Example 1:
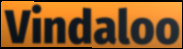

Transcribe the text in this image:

Vindaloo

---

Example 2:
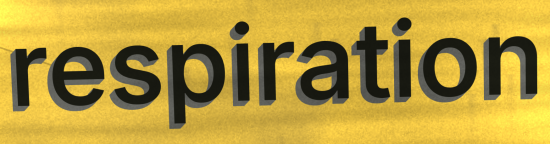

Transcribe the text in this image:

respiration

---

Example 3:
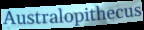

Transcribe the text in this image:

Australopithecus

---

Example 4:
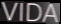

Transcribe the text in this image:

VIDA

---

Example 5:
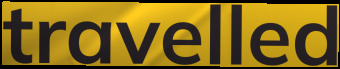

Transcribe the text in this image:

travelled